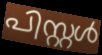
പിസ്റ്റൾ